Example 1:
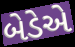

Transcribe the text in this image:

બેડેએ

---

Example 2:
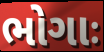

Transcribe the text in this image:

ભોગાઃ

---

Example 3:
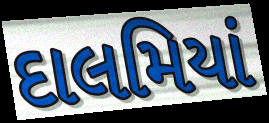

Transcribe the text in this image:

દાલમિયાં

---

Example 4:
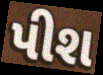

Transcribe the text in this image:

પીશ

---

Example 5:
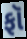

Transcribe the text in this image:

ફૉ